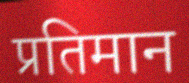
प्रतिमान